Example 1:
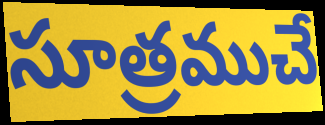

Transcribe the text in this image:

సూత్రముచే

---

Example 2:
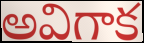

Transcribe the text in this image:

అవిగాక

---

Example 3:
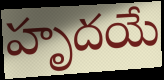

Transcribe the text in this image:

హృదయే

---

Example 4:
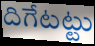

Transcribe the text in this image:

దిగేటట్టు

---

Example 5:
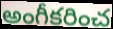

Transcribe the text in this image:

అంగీకరించ